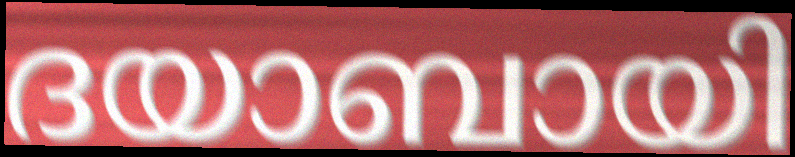
ദയാബായി